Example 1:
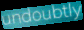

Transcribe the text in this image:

undoubtly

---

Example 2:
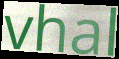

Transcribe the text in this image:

vhal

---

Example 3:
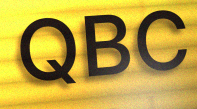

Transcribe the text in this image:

QBC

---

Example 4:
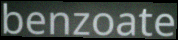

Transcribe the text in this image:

benzoate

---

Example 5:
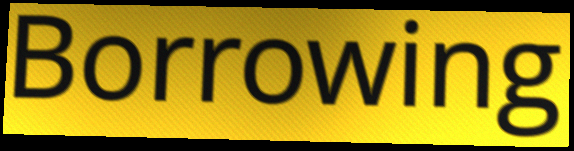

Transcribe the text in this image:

Borrowing